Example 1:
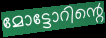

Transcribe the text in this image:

മോട്ടോറിന്റെ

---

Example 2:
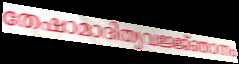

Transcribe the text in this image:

തേഷാമാദിത്യവജ്ജ്ഞാനം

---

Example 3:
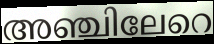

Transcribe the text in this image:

അഞ്ചിലേറെ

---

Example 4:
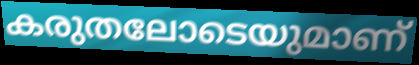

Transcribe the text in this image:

കരുതലോടെയുമാണ്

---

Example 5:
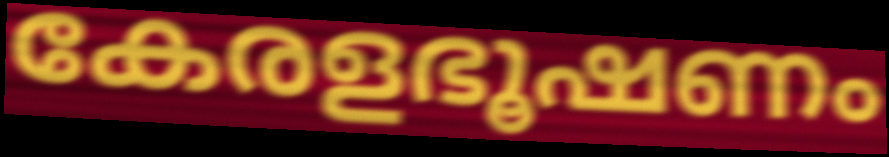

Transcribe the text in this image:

കേരളഭൂഷണം